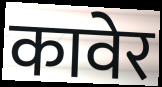
कावेर